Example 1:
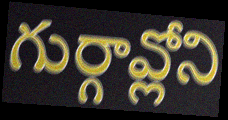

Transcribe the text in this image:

గుర్గావ్లోని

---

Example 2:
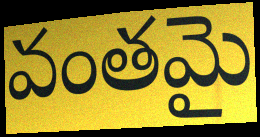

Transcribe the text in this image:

వంతమై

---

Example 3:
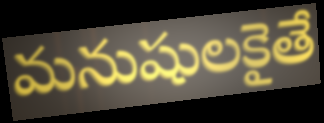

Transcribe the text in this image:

మనుషులకైతే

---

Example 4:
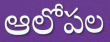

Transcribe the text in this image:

ఆలోపల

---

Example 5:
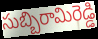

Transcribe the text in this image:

సుబ్బిరామిరెడ్డి